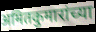
अमितकुमारांच्या